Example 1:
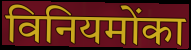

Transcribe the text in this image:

विनियमोंका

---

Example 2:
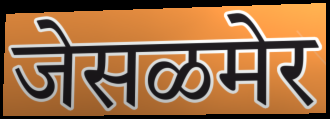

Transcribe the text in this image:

जेसळमेर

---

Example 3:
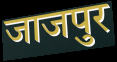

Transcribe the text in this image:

जाजपुर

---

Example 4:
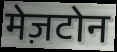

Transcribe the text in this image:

मेज़टोन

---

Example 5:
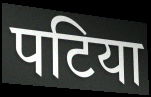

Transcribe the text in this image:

पटिया